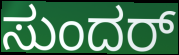
ಸುಂದರ್